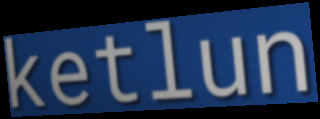
ketlun